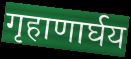
गृहाणार्घय